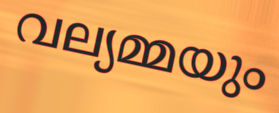
വല്യമ്മയും